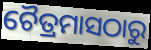
ଚୈତ୍ରମାସଠାରୁ